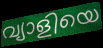
വ്യാളിയെ